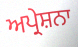
ਅਪ੍ਰੇਸ਼ਨਾ